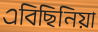
এবিছিনিয়া